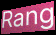
Rang